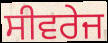
ਸੀਵਰੇਜ